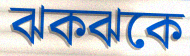
ঝকঝকে